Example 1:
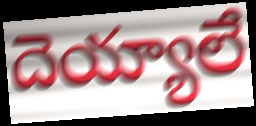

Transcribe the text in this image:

దెయ్యాలే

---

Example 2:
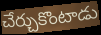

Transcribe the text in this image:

చేర్చుకొంటాడు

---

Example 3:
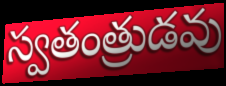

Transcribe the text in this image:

స్వతంత్రుడవు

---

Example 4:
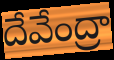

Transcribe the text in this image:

దేవేంద్రా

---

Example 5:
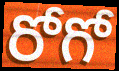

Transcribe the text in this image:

రోగో